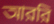
আররি